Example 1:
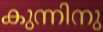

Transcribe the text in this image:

കുന്നിനു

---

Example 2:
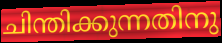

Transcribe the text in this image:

ചിന്തിക്കുന്നതിനു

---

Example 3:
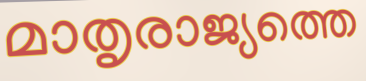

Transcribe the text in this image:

മാതൃരാജ്യത്തെ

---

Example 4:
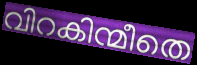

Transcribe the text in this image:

വിറകിന്മീതെ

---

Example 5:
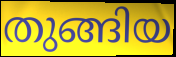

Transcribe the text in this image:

തുങ്ങിയ